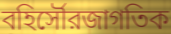
বহির্সৌরজাগতিক